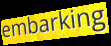
embarking